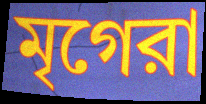
মৃগেরা